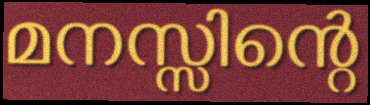
മനസ്സിന്റെ